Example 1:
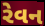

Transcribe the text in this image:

રેવન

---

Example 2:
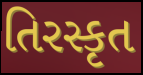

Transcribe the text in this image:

તિરસ્કૃત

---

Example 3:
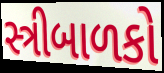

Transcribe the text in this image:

સ્ત્રીબાળકો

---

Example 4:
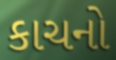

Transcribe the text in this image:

કાચનો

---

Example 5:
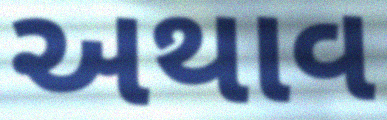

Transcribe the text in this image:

અથાવ